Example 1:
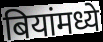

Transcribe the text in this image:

बियांमध्ये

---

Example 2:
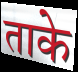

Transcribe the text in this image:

ताके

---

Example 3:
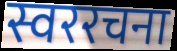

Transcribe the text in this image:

स्वररचना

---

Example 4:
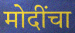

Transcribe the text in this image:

मोदींचा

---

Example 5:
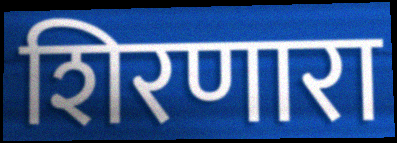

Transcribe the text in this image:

शिरणारा